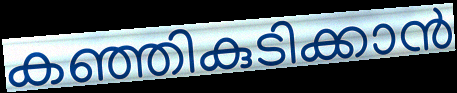
കഞ്ഞികുടിക്കാൻ